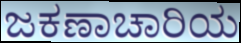
ಜಕಣಾಚಾರಿಯ